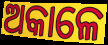
ଅକାଳେ